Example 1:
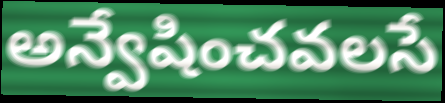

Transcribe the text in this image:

అన్వేషించవలసే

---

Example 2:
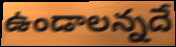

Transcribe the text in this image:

ఉండాలన్నదే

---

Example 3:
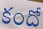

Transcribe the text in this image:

కందో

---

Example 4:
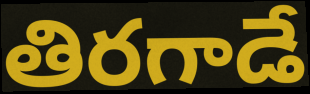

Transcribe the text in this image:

తిరగాడే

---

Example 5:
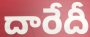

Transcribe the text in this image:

దారేదీ